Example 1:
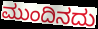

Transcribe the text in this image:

ಮುಂದಿನದು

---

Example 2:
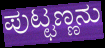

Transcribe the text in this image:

ಪುಟ್ಟಣ್ಣನು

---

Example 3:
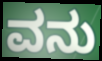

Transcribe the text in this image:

ವನು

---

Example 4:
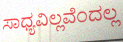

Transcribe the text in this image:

ಸಾಧ್ಯವಿಲ್ಲವೆಂದಲ್ಲ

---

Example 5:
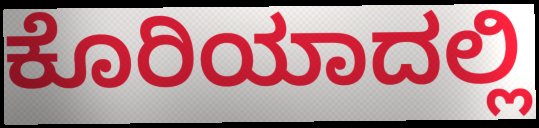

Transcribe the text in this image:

ಕೊರಿಯಾದಲ್ಲಿ